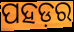
ପହଡ଼ର